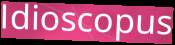
Idioscopus